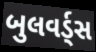
બુલવર્ડ્સ